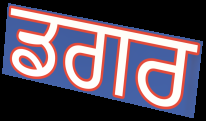
ਡਗਰ